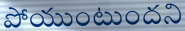
పోయుంటుందని